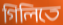
গিলিতে